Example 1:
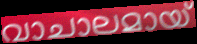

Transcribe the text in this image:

വാചാലമായ്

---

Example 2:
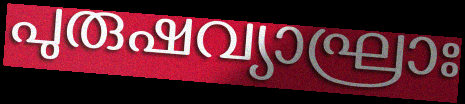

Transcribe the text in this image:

പുരുഷവ്യാഘ്രാഃ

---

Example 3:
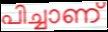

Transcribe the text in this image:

പിച്ചാണ്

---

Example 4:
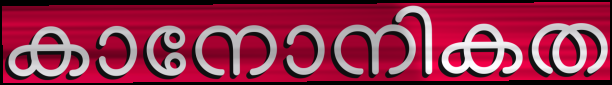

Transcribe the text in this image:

കാനോനികത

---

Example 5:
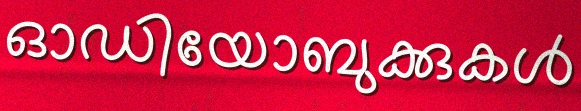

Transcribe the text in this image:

ഓഡിയോബുക്കുകൾ